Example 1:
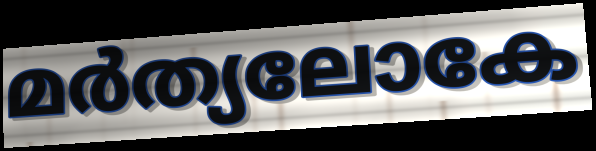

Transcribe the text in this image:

മർത്യലോകേ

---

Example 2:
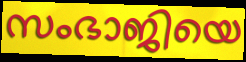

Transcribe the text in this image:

സംഭാജിയെ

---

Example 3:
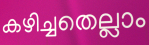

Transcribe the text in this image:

കഴിച്ചതെല്ലാം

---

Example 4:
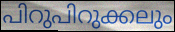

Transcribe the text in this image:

പിറുപിറുക്കലും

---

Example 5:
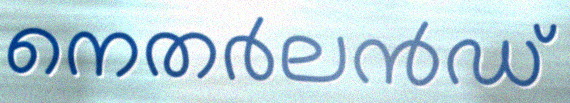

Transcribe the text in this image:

നെതർലൻഡ്